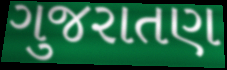
ગુજરાતણ